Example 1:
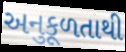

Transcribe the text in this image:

અનુકૂળતાથી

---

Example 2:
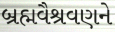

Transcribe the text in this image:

બ્રહ્મવૈશ્રવણને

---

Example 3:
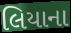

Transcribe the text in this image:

લિયાના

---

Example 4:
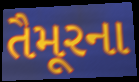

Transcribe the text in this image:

તૈમૂરના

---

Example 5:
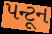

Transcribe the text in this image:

પન્ટૂન